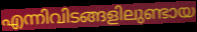
എന്നിവിടങ്ങളിലുണ്ടായ